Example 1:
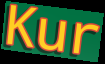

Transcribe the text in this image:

Kur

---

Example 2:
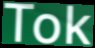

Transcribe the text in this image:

Tok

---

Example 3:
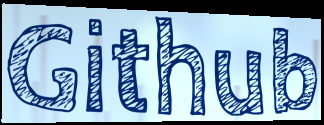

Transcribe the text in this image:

Github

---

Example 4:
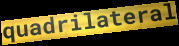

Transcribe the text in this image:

quadrilateral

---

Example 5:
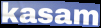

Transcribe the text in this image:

kasam